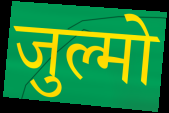
जुल्मो